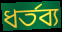
ধর্তব্য